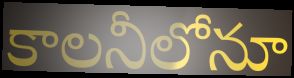
కాలనీలోనూ